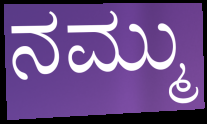
ನಮ್ಮು